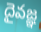
దైవజ్ఞ